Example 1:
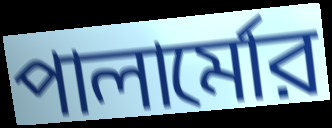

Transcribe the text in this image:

পালার্মোর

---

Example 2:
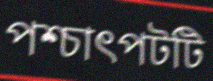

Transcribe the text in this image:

পশ্চাৎপটটি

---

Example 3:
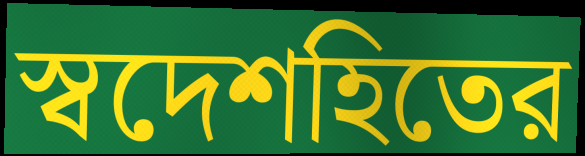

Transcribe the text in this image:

স্বদেশহিতের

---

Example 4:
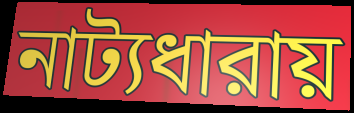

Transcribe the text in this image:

নাট্যধারায়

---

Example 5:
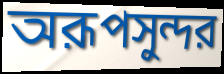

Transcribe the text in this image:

অরূপসুন্দর